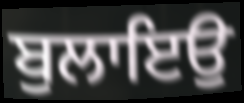
ਬੁਲਾਇਉ